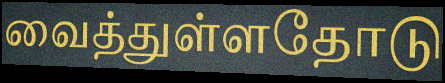
வைத்துள்ளதோடு